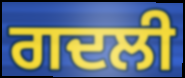
ਗਦਲੀ